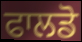
ਫਾਲਡੋ